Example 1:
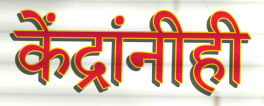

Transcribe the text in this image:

केंद्रांनीही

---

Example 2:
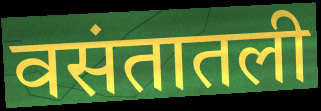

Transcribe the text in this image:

वसंतातली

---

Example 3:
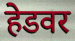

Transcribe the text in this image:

हेडवर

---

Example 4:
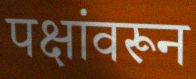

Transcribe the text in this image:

पक्षांवरून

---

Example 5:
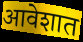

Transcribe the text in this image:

आवेशात